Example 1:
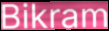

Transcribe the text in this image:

Bikram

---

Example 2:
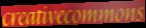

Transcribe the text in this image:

creativecommons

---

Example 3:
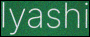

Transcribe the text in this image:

Iyashi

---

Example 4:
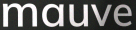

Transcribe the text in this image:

mauve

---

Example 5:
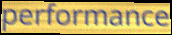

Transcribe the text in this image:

performance